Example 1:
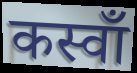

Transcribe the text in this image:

कस्वाँ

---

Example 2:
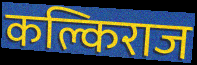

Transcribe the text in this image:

कल्किराज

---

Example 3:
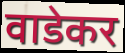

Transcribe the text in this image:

वाडेकर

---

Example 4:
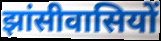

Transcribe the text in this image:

झांसीवासियों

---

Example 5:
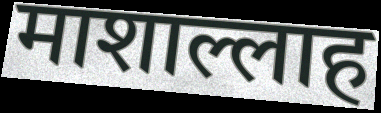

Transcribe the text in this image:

माशाल्लाह